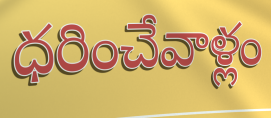
ధరించేవాళ్లం